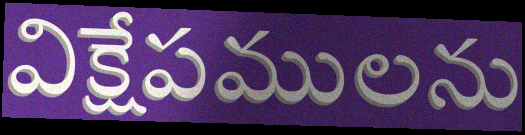
విక్షేపములను